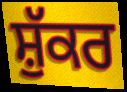
ਸ਼ੁੱਕਰ